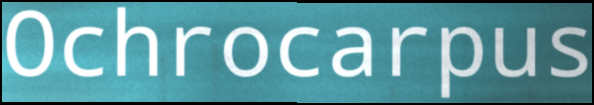
Ochrocarpus